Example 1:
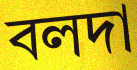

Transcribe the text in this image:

বলদা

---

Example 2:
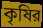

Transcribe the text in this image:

কৃষির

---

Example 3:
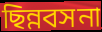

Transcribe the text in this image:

ছিন্নবসনা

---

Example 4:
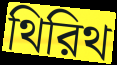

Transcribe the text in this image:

থিরিথ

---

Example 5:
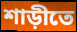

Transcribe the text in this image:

শাড়ীতে